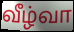
வீழ்வா